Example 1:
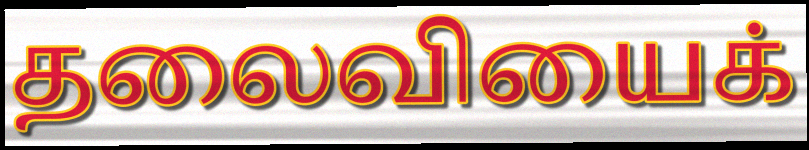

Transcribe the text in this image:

தலைவியைக்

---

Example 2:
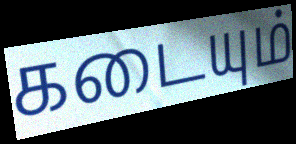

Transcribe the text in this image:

கடையும்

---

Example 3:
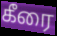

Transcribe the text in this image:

கீரை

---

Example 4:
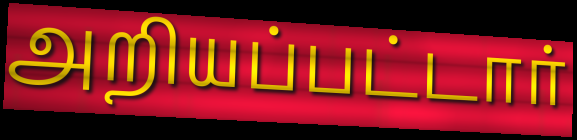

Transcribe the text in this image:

அறியப்பட்டார்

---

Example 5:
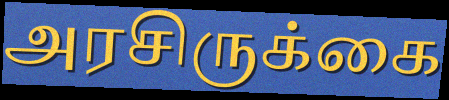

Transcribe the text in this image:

அரசிருக்கை